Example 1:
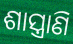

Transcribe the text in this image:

ଶାସ୍ତ୍ରାଣି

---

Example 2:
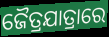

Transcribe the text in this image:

ଜୈତ୍ରଯାତ୍ରାରେ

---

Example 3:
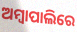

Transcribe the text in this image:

ଅମ୍ବାପାଲିରେ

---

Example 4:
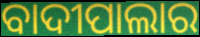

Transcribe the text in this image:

ବାଦୀପାଲାର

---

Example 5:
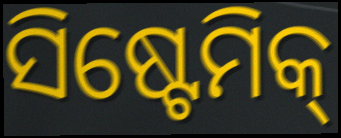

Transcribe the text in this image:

ସିଷ୍ଟେମିକ୍